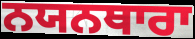
ਨਯਨਥਾਰਾ